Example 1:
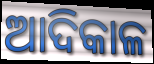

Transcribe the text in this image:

ଆଦିକାଳ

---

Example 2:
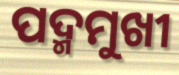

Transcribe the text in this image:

ପଦ୍ମମୁଖୀ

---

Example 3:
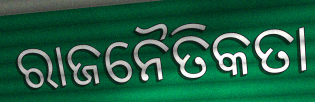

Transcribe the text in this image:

ରାଜନୈତିକତା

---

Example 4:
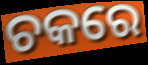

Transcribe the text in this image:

ଚକରେ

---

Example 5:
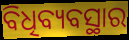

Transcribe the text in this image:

ବିଧିବ୍ୟବସ୍ଥାର